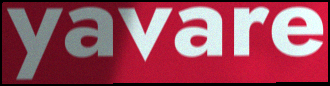
yavare